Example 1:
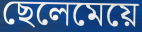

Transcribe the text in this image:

ছেলেমেয়ে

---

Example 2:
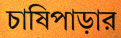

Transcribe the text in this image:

চাষিপাড়ার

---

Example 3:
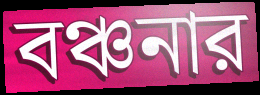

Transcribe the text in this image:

বঞ্চনার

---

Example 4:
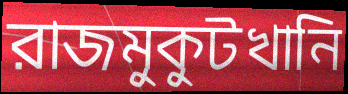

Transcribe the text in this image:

রাজমুকুটখানি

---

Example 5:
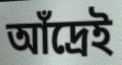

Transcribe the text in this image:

আঁদ্রেই